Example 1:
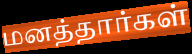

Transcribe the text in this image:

மனத்தார்கள்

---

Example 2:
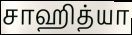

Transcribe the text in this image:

சாஹித்யா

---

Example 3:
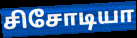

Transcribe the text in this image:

சிசோடியா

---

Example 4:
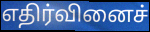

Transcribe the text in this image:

எதிர்வினைச்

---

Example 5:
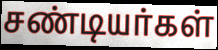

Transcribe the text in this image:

சண்டியர்கள்